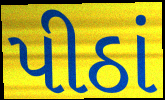
પીઠાં